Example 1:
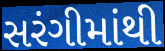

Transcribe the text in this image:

સરંગીમાંથી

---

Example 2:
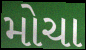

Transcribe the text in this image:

મોચા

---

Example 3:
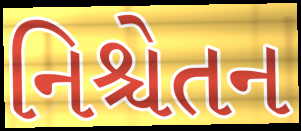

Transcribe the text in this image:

નિશ્ચેતન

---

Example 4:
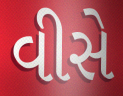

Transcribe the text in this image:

વીસે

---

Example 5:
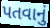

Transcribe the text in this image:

પતવાનું